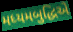
મધ્યમબુદ્ધિએ